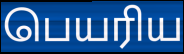
பெயரிய